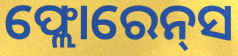
ଫ୍ଲୋରେନ୍‌ସ